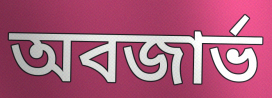
অবজার্ভ